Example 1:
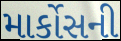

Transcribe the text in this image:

માર્કોસની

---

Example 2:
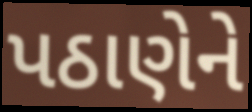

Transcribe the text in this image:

પઠાણેને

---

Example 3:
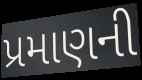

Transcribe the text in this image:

પ્રમાણની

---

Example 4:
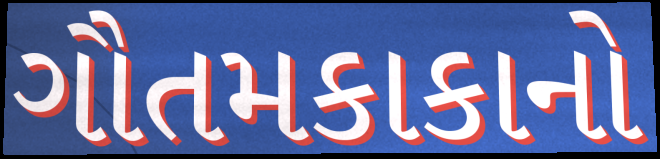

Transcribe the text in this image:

ગૌતમકાકાનો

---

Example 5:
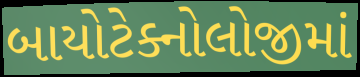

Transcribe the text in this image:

બાયોટેક્નોલોજીમાં